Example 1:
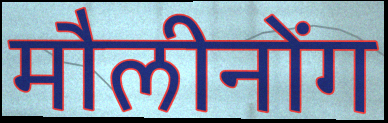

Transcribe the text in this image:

मौलीनोंग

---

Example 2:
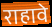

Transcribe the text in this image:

राहावे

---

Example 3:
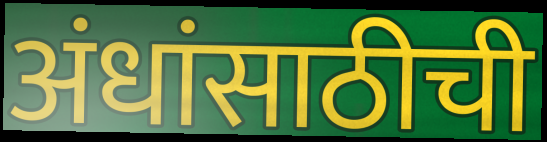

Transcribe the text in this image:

अंधांसाठीची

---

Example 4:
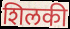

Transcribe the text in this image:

शिलकी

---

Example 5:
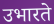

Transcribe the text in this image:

उभारते